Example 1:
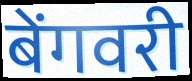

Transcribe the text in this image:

बेंगवरी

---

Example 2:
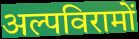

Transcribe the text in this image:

अल्पविरामों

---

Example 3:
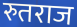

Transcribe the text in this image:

रुतराज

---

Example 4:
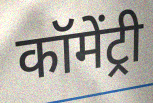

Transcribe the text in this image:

कॉमेंट्री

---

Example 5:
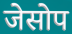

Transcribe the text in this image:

जेसोप